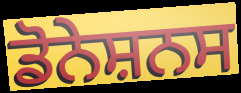
ਡੋਨੇਸ਼ਨਸ